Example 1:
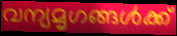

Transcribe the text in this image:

വന്യമൃഗങ്ങൾക്ക്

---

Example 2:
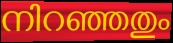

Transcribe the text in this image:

നിറഞ്ഞതും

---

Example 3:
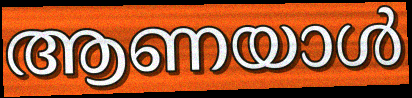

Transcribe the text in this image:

ആണയാൾ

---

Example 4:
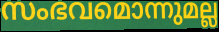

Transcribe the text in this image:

സംഭവമൊന്നുമല്ല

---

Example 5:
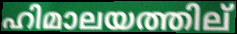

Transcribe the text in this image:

ഹിമാലയത്തില്